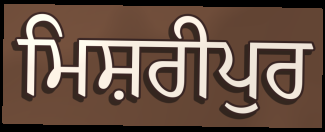
ਮਿਸ਼ਰੀਪੁਰ